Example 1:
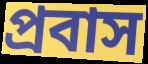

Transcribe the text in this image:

প্রবাস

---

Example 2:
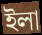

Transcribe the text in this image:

ইলা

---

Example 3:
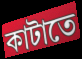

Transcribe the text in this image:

কাটাতে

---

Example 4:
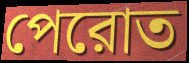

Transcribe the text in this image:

পেরোত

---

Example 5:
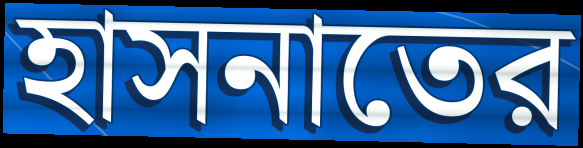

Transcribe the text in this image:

হাসনাতের